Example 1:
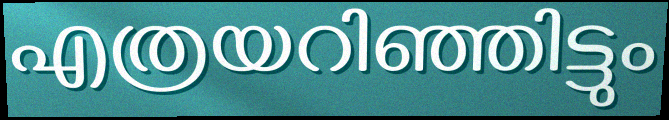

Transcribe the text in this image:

എത്രയറിഞ്ഞിട്ടും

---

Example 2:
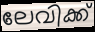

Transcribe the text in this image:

ലേവിക്ക്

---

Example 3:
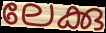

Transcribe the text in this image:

ലേക്കു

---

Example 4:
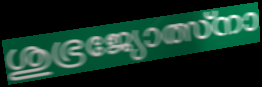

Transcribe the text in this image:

ശുഭ്രജ്യോത്സ്നാ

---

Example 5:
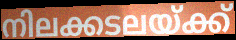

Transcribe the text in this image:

നിലക്കടലയ്ക്ക്